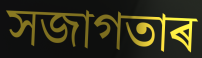
সজাগতাৰ